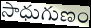
సాధుగుణం